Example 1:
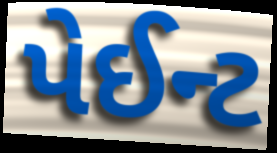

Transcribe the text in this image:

પેઈન્ટ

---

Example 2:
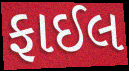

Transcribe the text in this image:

ફાઈલ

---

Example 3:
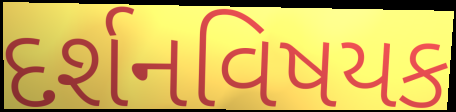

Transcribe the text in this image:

દર્શનવિષયક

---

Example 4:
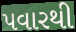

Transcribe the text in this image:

પવારથી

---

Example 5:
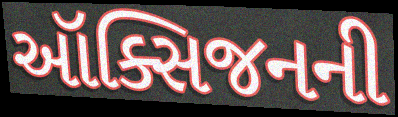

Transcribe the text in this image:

ઑક્સિજનની